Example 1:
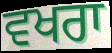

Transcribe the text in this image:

ਵਖਰਾ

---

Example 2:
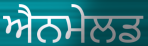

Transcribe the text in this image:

ਐਨਮੇਲਡ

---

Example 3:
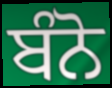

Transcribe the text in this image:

ਬੰਨੋ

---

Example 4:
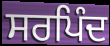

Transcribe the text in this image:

ਸਰਪਿੰਦ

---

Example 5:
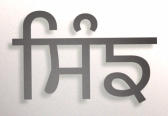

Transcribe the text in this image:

ਸਿੰਙ